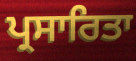
ਪ੍ਰਸਾਰਿਤਾ